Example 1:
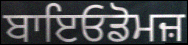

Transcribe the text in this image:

ਬਾਇਓਡੋਮਜ਼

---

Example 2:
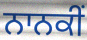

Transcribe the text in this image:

ਨਾਨਕੀਂ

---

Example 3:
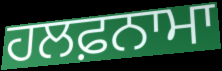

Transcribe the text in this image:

ਹਲਫ਼ਨਾਮਾ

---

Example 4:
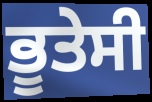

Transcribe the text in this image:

ਭੂਤੇਸੀ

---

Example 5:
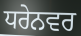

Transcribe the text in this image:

ਧਰੇਨਵਰ